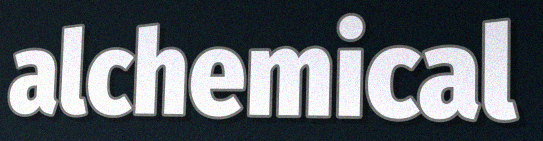
alchemical